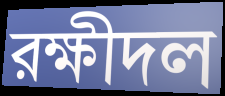
রক্ষীদল